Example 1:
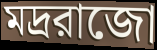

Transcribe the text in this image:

মদ্ররাজো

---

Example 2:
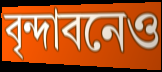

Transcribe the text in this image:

বৃন্দাবনেও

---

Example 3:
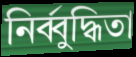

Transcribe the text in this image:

নির্ব্বুদ্ধিতা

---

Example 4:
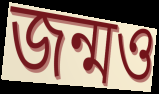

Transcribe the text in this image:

জন্মও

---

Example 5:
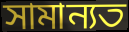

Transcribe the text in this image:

সামান্যত